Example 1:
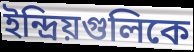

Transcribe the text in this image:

ইন্দ্রিয়গুলিকে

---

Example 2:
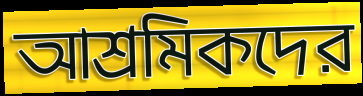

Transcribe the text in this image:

আশ্রমিকদের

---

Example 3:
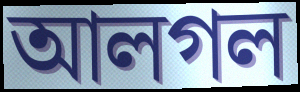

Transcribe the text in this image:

আলগল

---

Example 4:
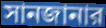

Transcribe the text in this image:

সানজানার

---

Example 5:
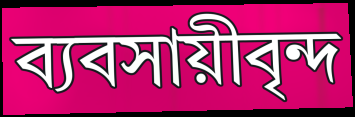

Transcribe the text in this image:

ব্যবসায়ীবৃন্দ